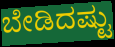
ಬೇಡಿದಷ್ಟು